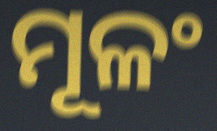
ମୂଳଂ